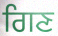
ਗਿਣ